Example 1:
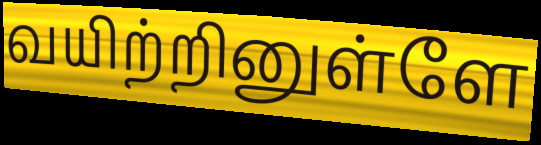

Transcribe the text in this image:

வயிற்றினுள்ளே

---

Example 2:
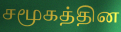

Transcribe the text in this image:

சமூகத்தின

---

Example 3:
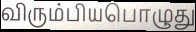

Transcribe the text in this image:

விரும்பியபொழுது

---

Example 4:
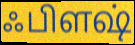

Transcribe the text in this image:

ஃபிளஷ்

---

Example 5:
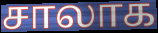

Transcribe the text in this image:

சாலாக